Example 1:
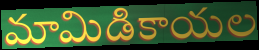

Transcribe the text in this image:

మామిడికాయల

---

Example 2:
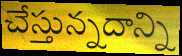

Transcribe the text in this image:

చేస్తున్నదాన్ని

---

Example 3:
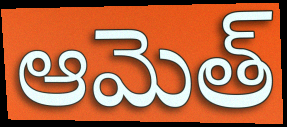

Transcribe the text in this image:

ఆమెత్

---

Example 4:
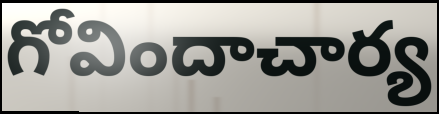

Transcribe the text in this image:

గోవిందాచార్య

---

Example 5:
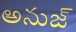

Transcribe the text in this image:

అనుజ్